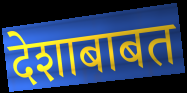
देशाबाबत